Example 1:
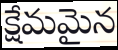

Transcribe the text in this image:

క్షేమమైన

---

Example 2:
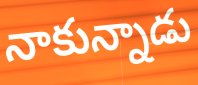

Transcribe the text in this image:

నాకున్నాడు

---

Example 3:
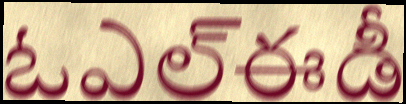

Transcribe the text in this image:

ఓఎల్ఈడీ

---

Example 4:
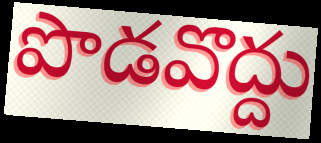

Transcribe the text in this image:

పొడవొద్దు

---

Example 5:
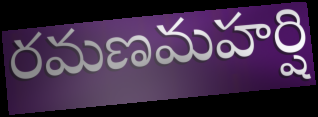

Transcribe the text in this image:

రమణమహర్షి